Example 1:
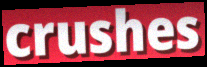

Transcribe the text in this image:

crushes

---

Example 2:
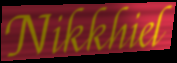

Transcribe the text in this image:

Nikkhiel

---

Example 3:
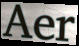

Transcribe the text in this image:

Aer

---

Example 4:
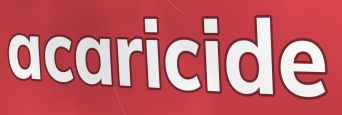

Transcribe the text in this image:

acaricide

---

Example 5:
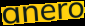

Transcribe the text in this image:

anero